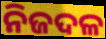
ନିଜଦଳ